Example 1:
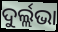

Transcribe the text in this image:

ଦୁର୍ଲ୍ଲଭା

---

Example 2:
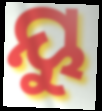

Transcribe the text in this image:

ୟୁ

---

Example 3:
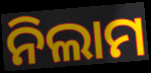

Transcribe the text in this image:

ନିଲାମ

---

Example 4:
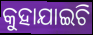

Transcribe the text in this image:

କୁହାଯାଇଚି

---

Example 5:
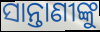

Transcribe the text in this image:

ସାନ୍ତାଣୀଙ୍କୁ